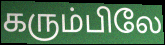
கரும்பிலே